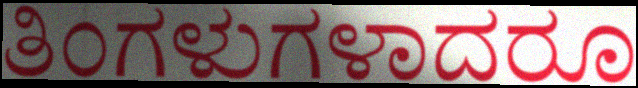
ತಿಂಗಳುಗಳಾದರೂ